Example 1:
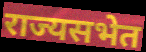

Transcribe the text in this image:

राज्यसभेत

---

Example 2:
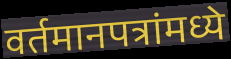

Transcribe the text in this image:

वर्तमानपत्रांमध्ये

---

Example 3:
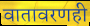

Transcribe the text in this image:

वातावरणही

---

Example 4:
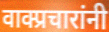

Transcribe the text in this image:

वाक्प्रचारांनी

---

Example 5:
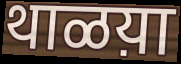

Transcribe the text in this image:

थाळय़ा